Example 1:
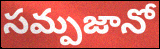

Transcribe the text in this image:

సమ్పజానో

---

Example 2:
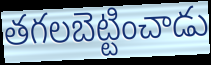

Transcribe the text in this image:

తగలబెట్టించాడు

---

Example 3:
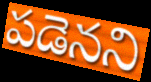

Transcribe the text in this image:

పడెనని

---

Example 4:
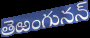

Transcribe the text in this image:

తెఱంగునన్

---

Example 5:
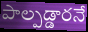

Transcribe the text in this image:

పాల్పడ్డారనే